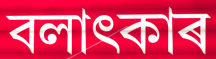
বলাৎকাৰ